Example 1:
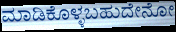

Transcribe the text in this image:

ಮಾಡಿಕೊಳ್ಳಬಹುದೇನೋ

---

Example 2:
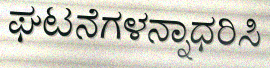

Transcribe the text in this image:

ಘಟನೆಗಳನ್ನಾಧರಿಸಿ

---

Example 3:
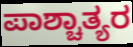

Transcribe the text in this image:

ಪಾಶ್ಚಾತ್ಯರ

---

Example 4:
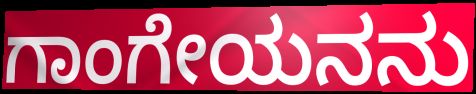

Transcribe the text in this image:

ಗಾಂಗೇಯನನು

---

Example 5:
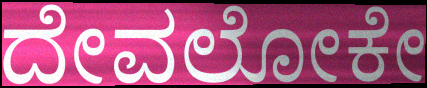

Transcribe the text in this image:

ದೇವಲೋಕೇ